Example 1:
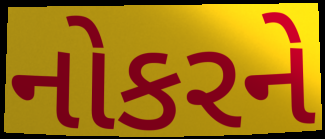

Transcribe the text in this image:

નોકરને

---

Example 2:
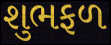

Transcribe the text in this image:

શુભફળ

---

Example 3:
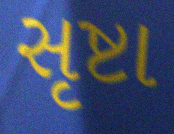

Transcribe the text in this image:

સૃષ્ટા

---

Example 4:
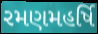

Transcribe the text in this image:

રમણમહર્ષિ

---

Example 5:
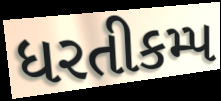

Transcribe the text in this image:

ધરતીકમ્પ